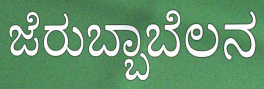
ಜೆರುಬ್ಬಾಬೆಲನ